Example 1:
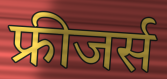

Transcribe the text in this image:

फ्रीजर्स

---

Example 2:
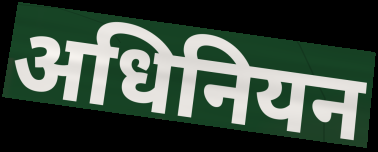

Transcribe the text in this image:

अधिनियन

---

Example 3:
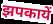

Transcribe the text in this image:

झपकायें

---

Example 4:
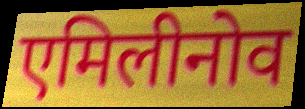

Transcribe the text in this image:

एमिलीनोव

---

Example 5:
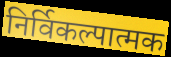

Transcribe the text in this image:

निर्विकल्पात्मक